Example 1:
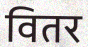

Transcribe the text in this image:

वितर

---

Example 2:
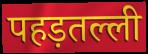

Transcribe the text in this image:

पहड़तल्ली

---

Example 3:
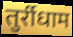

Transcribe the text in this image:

तुर्रीधाम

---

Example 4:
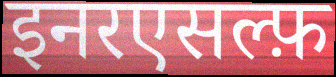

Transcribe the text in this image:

इनरएसल्फ़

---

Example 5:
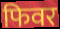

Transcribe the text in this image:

फिवर